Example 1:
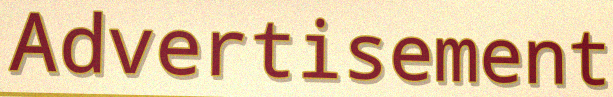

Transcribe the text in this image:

Advertisement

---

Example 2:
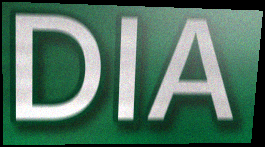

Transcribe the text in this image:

DIA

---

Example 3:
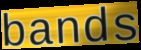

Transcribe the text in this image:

bands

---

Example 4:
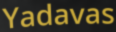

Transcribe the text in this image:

Yadavas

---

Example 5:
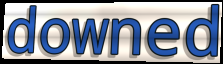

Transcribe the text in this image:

downed